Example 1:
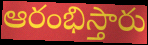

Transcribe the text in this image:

ఆరంభిస్తారు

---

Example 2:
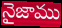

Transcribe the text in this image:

నైజాము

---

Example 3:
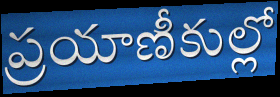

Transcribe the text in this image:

ప్రయాణీకుల్లో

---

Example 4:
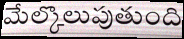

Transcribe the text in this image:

మేల్కొలుపుతుంది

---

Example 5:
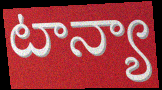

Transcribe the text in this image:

టాన్యా